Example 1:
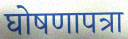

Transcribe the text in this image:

घोषणापत्रा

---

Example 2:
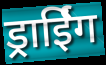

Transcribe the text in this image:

ड्राईिंग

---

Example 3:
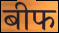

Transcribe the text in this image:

बीफ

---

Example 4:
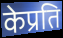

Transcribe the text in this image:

केप्रति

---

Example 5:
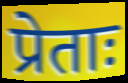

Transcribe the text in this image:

प्रेताः